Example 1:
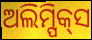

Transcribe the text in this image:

ଅଲିମ୍ପିକ୍‌ସ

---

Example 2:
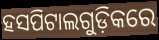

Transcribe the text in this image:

ହସପିଟାଲଗୁଡ଼ିକରେ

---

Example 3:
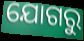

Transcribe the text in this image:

ଯୋଗରୁ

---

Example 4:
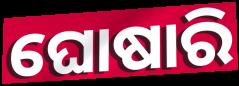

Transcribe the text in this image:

ଘୋଷାରି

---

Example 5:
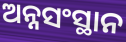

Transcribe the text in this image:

ଅନ୍ନସଂସ୍ଥାନ